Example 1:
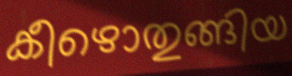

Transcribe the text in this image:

കീഴൊതുങ്ങിയ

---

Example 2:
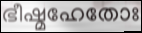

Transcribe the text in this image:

ഭീഷ്മഹേതോഃ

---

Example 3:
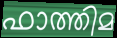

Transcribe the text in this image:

ഫാത്തിമ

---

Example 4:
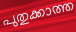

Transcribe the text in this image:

പുതുക്കാത്ത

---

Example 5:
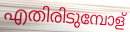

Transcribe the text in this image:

എതിരിടുമ്പോള്